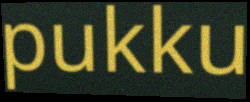
pukku